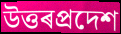
উত্তৰপ্ৰদেশ